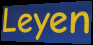
Leyen